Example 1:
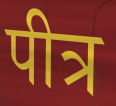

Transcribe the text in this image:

पीत्र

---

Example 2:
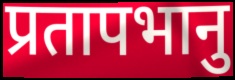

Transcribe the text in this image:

प्रतापभानु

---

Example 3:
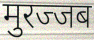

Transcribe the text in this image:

मुरज्जब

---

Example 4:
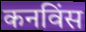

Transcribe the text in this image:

कनविंस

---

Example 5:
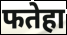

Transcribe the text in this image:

फतेहा